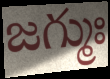
జగ్ముః